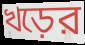
খড়ের